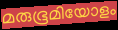
മരുഭൂമിയോളം